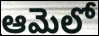
ఆమెలో